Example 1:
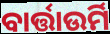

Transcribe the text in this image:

ବାର୍ତ୍ତାଉର୍ମି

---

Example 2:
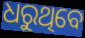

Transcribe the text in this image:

ଧରୁଥିବେ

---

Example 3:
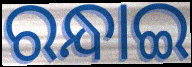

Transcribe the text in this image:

ରନ୍ଧାଇ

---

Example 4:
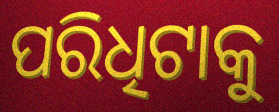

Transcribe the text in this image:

ପରିଧିଟାକୁ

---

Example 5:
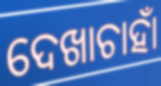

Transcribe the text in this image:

ଦେଖାଚାହାଁ